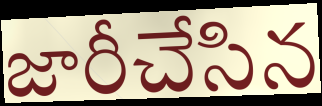
జారీచేసిన